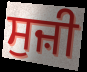
ਸੁਜ਼ੀ